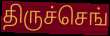
திருச்செங்